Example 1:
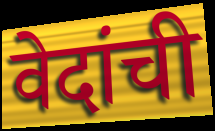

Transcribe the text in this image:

वेदांची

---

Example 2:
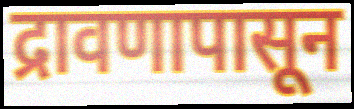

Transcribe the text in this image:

द्रावणापासून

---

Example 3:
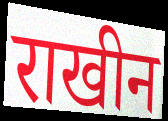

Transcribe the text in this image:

राखीन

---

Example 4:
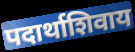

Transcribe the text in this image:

पदार्थाशिवाय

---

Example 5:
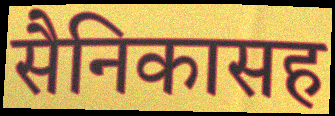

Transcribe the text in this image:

सैनिकासह